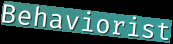
Behaviorist